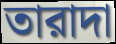
তারাদা